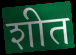
शीत